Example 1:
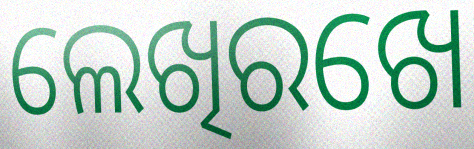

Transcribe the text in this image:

ଲେଖିରଖେ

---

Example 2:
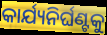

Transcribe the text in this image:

କାର୍ଯ୍ୟନିର୍ଘଣ୍ଟକୁ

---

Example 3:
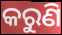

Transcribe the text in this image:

କରୁଣି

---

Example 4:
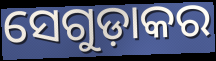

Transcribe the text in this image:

ସେଗୁଡ଼ାକର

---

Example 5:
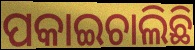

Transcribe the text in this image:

ପକାଇଚାଲିଛି